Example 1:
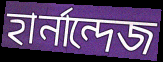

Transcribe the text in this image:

হার্নান্দেজ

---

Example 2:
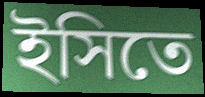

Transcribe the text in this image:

ইসিতে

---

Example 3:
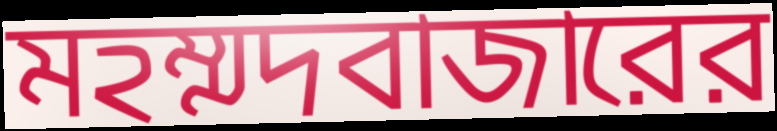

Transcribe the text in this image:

মহম্মদবাজারের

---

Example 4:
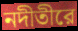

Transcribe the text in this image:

নদীতীরে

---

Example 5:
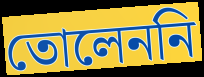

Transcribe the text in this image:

তোলেননি